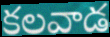
కలవాడ